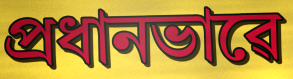
প্ৰধানভাৱে